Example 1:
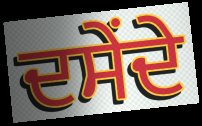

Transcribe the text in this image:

ਦਸੇਂਦੇ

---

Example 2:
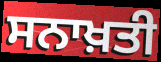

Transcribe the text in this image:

ਸਨਾਖ਼ਤੀ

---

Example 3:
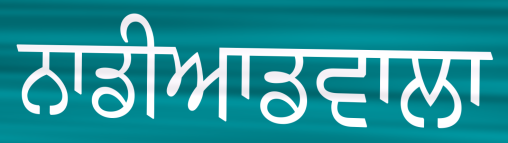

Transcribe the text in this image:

ਨਾਡੀਆਡਵਾਲਾ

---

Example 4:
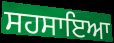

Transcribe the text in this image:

ਸਹਸਾਇਆ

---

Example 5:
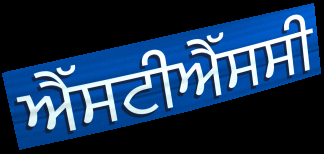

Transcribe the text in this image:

ਐੱਸਟੀਐੱਸਸੀ